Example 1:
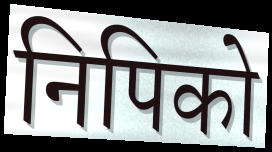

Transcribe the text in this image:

निपिको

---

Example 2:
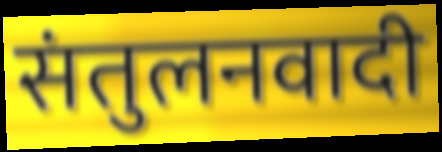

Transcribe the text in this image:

संतुलनवादी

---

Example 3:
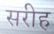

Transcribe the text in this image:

सरीह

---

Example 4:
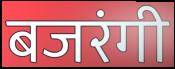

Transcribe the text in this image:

बजरंगी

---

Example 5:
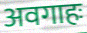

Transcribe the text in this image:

अवगाहः